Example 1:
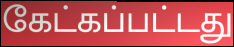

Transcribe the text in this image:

கேட்கப்பட்டது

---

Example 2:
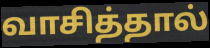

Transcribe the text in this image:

வாசித்தால்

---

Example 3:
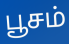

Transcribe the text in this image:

பூசம்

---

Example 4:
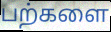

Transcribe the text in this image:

பற்களை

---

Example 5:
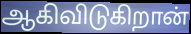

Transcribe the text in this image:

ஆகிவிடுகிறான்